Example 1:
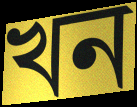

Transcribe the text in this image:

খন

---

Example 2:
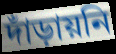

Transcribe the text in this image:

দাঁড়ায়নি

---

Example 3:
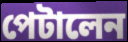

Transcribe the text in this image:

পেটালেন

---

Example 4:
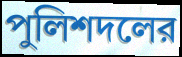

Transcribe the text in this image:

পুলিশদলের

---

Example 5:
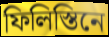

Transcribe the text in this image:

ফিলিস্তিনে